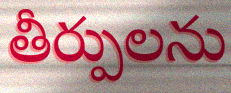
తీర్పులను